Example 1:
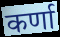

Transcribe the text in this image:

कर्णा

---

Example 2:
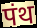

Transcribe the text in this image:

पंथ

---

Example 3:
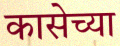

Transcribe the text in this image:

कासेच्या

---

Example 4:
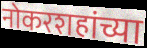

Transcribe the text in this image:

नोकरशहांच्या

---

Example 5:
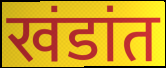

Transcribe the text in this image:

खंडांत